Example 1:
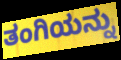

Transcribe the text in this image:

ತಂಗಿಯನ್ನು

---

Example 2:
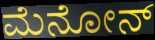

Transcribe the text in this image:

ಮೆನೋನ್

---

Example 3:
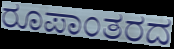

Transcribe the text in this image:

ರೂಪಾಂತರದ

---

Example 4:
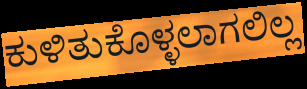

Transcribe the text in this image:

ಕುಳಿತುಕೊಳ್ಳಲಾಗಲಿಲ್ಲ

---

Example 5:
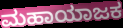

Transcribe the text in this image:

ಮಹಾಯಾಜಕ